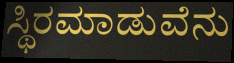
ಸ್ಥಿರಮಾಡುವೆನು